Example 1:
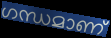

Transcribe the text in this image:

ഗന്ധമാണ്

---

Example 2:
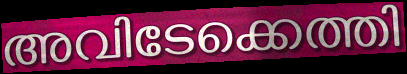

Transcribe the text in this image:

അവിടേക്കെത്തി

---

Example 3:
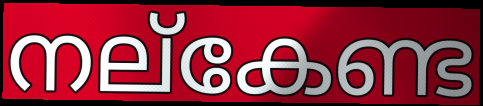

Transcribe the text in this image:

നല്കേണ്ട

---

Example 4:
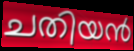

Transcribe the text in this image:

ചതിയൻ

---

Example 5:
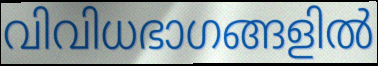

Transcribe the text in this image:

വിവിധഭാഗങ്ങളിൽ